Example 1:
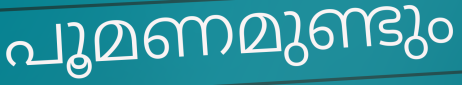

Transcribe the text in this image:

പൂമണമുണ്ടും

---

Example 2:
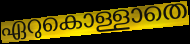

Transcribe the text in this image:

ഏറുകൊള്ളാതെ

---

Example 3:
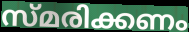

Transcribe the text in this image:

സ്മരിക്കണം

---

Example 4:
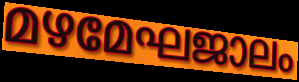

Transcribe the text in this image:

മഴമേഘജാലം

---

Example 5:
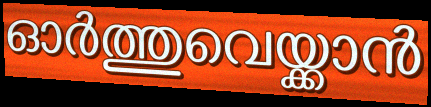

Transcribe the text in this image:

ഓർത്തുവെയ്ക്കാൻ